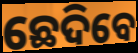
ଛେଦିବେ